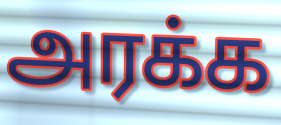
அரக்க